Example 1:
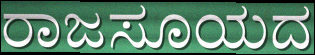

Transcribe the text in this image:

ರಾಜಸೂಯದ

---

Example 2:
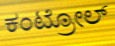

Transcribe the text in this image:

ಕಂಟ್ರೋಲ್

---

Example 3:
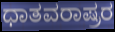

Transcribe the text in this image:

ಧಾತವರಾಷ್ರರ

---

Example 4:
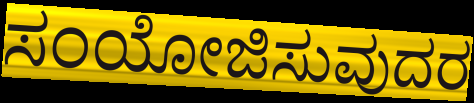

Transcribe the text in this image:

ಸಂಯೋಜಿಸುವುದರ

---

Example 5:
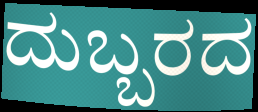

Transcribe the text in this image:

ದುಬ್ಬರದ